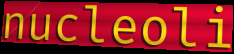
nucleoli